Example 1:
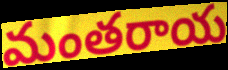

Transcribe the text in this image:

మంతరాయ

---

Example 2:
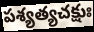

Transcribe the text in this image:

పశ్యత్యచక్షుః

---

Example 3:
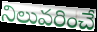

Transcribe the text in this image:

నిలువరించే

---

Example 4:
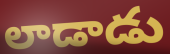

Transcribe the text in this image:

లాడాడు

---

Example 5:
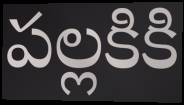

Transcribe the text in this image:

పల్లకికి